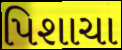
પિશાચા